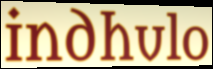
indhulo